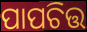
ପାପଚିତ୍ତ